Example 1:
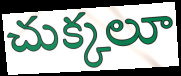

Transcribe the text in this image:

చుక్కలూ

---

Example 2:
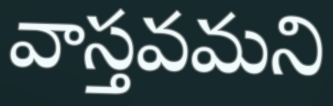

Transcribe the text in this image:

వాస్తవమని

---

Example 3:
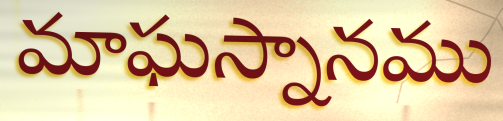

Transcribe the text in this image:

మాఘస్నానము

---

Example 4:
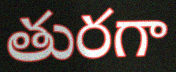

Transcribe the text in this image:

తురగా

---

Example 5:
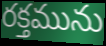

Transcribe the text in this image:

రక్తమును